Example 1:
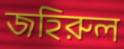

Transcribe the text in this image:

জহিরুল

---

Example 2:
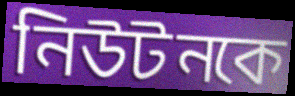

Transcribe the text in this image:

নিউটনকে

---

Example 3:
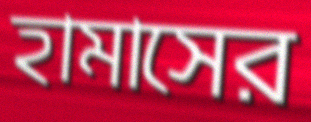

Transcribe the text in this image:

হামাসের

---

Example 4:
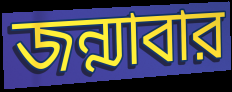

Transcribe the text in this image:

জন্মাবার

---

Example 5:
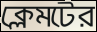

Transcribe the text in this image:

ক্লেমটের